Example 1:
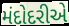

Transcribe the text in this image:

મંદોદરીએ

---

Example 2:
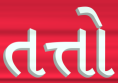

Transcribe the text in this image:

તત્તો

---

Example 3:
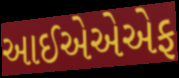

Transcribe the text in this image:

આઈએએએફ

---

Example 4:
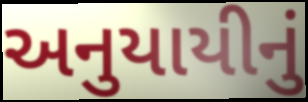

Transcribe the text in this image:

અનુયાયીનું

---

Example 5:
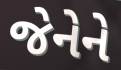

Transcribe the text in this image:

જેનેને